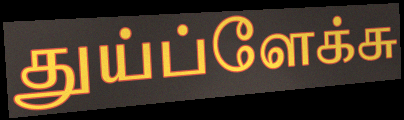
துய்ப்ளேக்சு